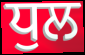
ਧੁਲ